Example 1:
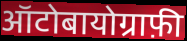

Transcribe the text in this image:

ऑटोबायोग्राफ़ी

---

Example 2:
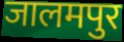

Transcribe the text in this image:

जालमपुर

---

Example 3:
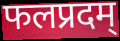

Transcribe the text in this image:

फलप्रदम्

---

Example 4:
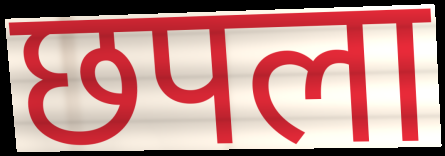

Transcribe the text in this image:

छपला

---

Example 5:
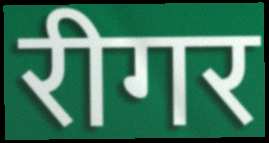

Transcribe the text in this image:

रीगर